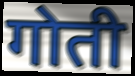
गोती